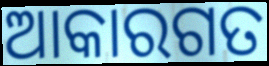
ଆକାରଗତ